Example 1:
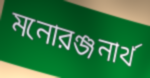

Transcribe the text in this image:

মনোরঞ্জনার্থ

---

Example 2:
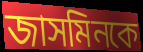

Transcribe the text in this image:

জাসমিনকে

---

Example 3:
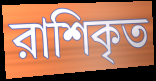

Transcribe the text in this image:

রাশিকৃত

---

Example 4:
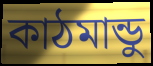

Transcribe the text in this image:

কাঠমান্ডু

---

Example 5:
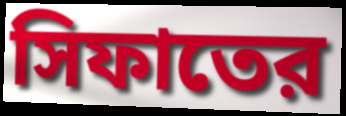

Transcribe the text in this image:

সিফাতের